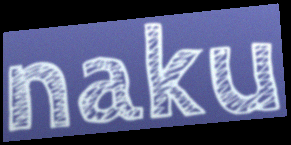
naku